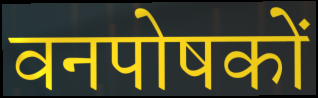
वनपोषकों